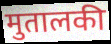
मुतालकी